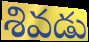
శివడు